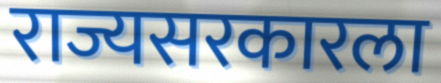
राज्यसरकारला